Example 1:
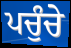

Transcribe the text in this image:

ਪਚੁੰਚੇ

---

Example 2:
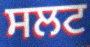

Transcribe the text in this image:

ਸਲਟ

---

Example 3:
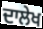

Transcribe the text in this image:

ਦਾਲੇਖ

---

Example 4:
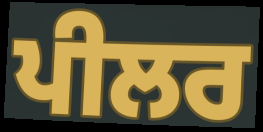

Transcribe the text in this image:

ਪੀਲਰ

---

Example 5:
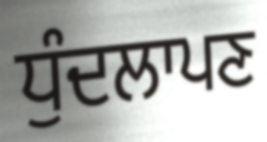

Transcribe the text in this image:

ਧੁੰਦਲਾਪਣ